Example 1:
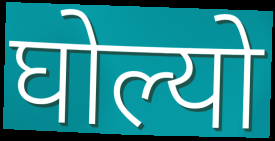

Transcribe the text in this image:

घोल्यो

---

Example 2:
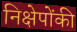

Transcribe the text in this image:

निक्षेपोंकी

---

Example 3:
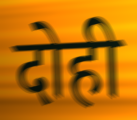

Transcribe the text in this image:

दोही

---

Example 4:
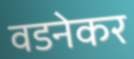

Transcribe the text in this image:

वडनेकर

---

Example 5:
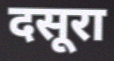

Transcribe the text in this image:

दसूरा